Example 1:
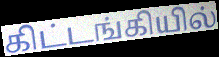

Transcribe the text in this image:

கிட்டங்கியில்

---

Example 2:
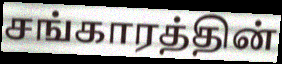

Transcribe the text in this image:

சங்காரத்தின்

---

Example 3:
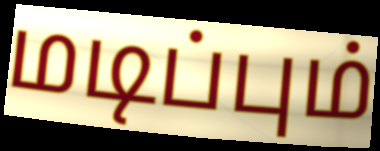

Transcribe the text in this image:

மடிப்பும்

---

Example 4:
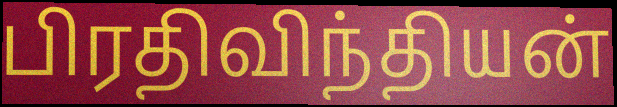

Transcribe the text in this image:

பிரதிவிந்தியன்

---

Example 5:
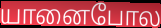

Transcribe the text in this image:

யானைபோல